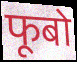
फूबो